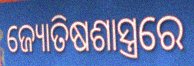
ଜ୍ୟୋତିଷଶାସ୍ତ୍ରରେ